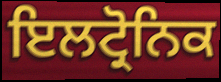
ਇਲਟ੍ਰੋਨਿਕ